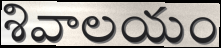
శివాలయం